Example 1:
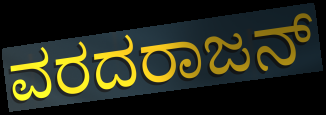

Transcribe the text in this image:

ವರದರಾಜನ್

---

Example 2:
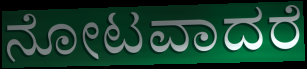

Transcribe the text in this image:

ನೋಟವಾದರೆ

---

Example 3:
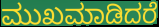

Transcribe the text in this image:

ಮುಖಮಾಡಿದರೆ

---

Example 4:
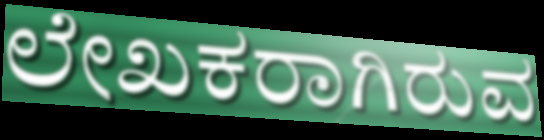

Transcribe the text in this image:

ಲೇಖಕರಾಗಿರುವ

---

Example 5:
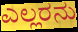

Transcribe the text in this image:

ಎಲ್ಲರನು